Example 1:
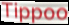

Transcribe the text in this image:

Tippoo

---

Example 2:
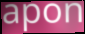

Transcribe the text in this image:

apon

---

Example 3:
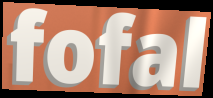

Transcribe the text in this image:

fofal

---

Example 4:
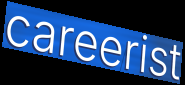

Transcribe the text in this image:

careerist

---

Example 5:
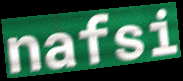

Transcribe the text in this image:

nafsi